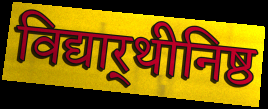
विद्यार्थीनिष्ठ